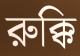
রুক্কি